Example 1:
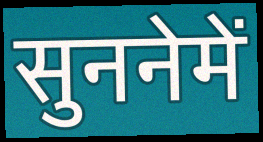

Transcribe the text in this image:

सुननेमें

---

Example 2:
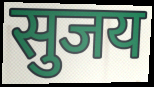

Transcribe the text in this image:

सुजय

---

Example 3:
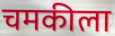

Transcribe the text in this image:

चमकीला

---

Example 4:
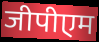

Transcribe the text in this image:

जीपीएम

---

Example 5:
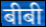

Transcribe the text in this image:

बीबी